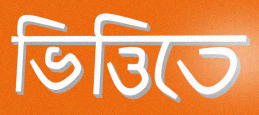
ভিত্তিতে